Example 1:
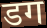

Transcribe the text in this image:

डग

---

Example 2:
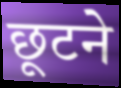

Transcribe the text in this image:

छूटने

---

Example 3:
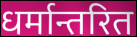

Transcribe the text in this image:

धर्मान्तरित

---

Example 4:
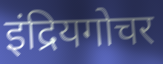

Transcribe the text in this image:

इंद्रियगोचर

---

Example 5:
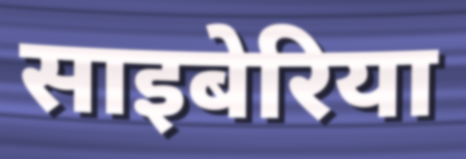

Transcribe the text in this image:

साइबेरिया